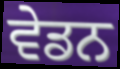
ਵੇਡਨ